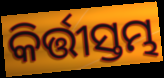
କିର୍ତ୍ତୀସ୍ତମ୍ଭ